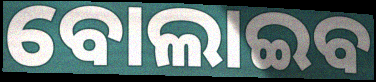
ବୋଲାଇବ